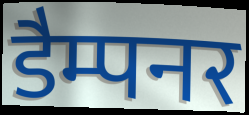
डैम्पनर